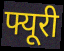
फ्यूरी